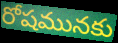
రోషమునకు